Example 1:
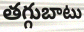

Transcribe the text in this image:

తగ్గుబాటు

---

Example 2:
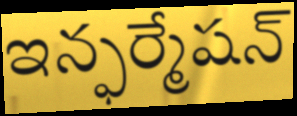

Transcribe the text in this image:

ఇన్ఫర్మేషన్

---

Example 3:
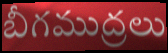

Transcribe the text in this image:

బీగముద్రలు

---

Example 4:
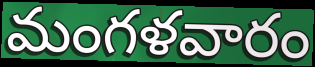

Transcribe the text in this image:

మంగళవారం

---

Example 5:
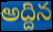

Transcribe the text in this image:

అద్దిన